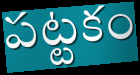
పట్టకం